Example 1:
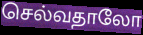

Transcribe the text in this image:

செல்வதாலோ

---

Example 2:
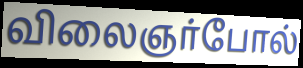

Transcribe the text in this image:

விலைஞர்போல்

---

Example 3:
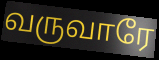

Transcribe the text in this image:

வருவாரே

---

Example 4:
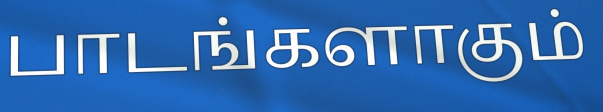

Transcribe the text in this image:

பாடங்களாகும்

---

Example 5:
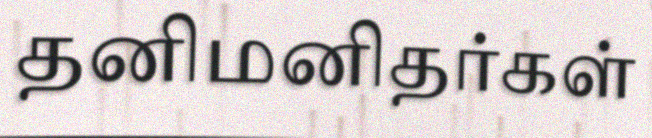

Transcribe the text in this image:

தனிமனிதர்கள்